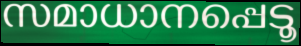
സമാധാനപ്പെടൂ